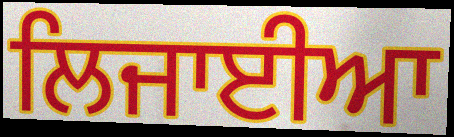
ਲਿਜਾਈਆ